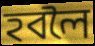
হবলৈ